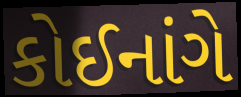
કોઈનાંગે